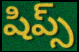
షిప్స్